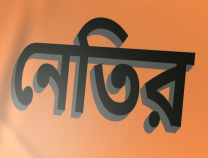
নেতির